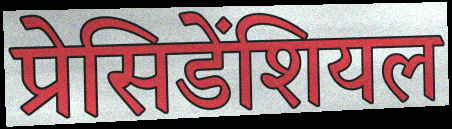
प्रेसिडेंशियल